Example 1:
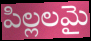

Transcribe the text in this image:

పిల్లలమై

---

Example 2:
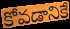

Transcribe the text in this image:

కోవడానికే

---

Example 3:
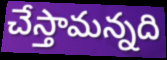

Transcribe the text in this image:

చేస్తామన్నది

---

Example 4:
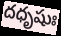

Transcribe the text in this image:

దధృషుః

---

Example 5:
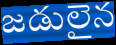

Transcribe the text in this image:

జడులైన